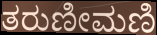
ತರುಣೀಮಣಿ